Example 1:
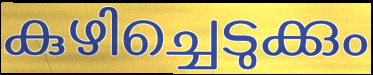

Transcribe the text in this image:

കുഴിച്ചെടുക്കും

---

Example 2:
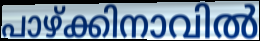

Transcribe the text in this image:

പാഴ്ക്കിനാവിൽ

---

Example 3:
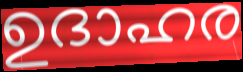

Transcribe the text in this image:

ഉദാഹര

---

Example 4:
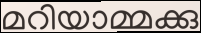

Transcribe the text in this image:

മറിയാമ്മക്കു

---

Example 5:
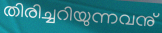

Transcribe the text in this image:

തിരിച്ചറിയുന്നവനു്